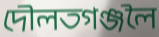
দৌলতগঞ্জলৈ